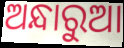
ଅନ୍ଧାରୁଆ